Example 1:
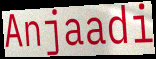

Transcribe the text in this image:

Anjaadi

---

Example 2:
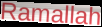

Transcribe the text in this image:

Ramallah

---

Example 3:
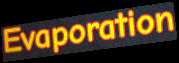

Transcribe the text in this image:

Evaporation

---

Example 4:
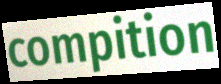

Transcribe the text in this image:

compition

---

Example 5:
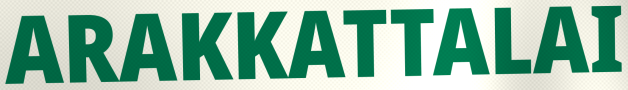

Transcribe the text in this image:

ARAKKATTALAI